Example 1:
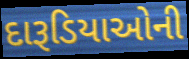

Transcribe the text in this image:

દારૂડિયાઓની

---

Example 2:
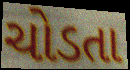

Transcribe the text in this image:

ચોડતા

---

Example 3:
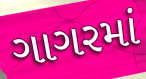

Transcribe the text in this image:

ગાગરમાં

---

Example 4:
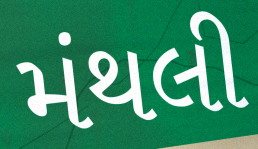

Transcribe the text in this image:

મંથલી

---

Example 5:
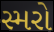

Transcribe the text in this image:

સ્મરો